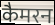
कैमरन